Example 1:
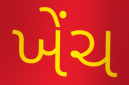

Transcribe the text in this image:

ખેંચ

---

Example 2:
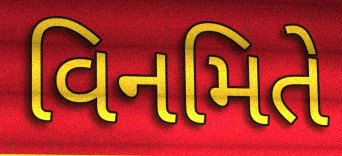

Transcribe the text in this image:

વિનમિતે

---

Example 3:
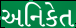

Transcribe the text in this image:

અનિકેત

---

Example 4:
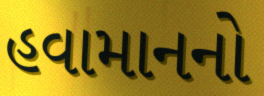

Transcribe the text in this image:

હવામાનનો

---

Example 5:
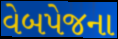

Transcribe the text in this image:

વેબપેજના